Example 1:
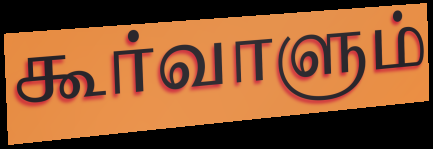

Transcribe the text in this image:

கூர்வாளும்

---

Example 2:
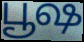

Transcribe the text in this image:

பூஷ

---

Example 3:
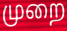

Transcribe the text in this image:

முறை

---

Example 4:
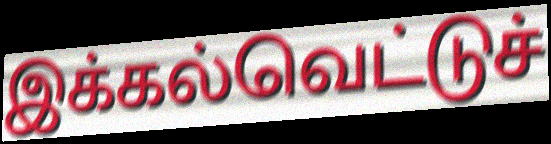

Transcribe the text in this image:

இக்கல்வெட்டுச்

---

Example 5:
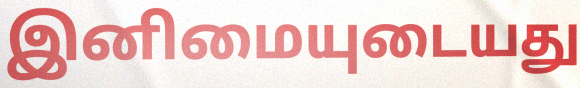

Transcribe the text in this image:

இனிமையுடையது